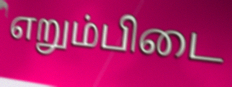
எறும்பிடை